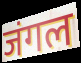
जंगल